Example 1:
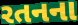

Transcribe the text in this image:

રતનના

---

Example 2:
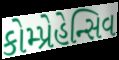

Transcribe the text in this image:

કોમ્પ્રેહેન્સિવ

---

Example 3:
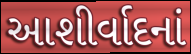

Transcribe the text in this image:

આશીર્વાદનાં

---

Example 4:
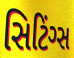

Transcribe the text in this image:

સિટિંગ્સ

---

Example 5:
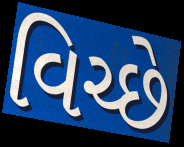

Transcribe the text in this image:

વિચ્છે